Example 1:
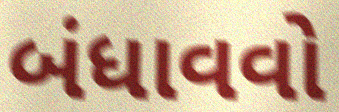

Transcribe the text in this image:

બંધાવવો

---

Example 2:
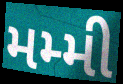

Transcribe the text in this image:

મમ્મી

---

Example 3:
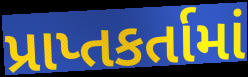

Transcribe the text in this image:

પ્રાપ્તકર્તામાં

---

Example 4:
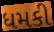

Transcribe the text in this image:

ધમકી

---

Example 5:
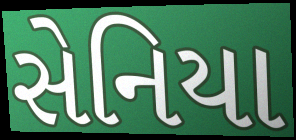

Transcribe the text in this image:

સેનિયા